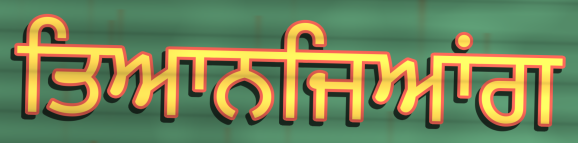
ਤਿਆਨਜਿਆਂਗ